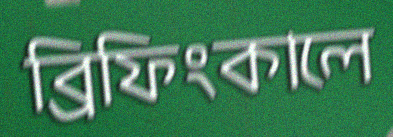
ব্রিফিংকালে